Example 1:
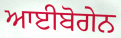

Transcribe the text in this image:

ਆਈਬੋਗੇਨ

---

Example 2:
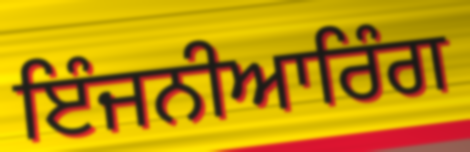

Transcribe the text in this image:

ਇੰਜਨੀਆਰਿੰਗ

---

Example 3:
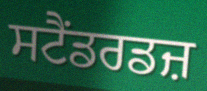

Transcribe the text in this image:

ਸਟੈਂਡਰਡਜ਼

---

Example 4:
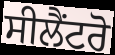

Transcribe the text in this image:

ਸੀਲੈਂਟਰੋ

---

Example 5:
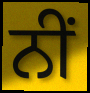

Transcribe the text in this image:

ਨੀਂ